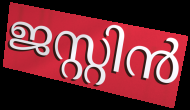
ജസ്റ്റിൻ